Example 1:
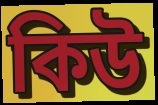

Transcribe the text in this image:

কিউ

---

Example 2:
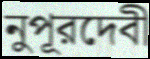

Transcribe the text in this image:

নুপূরদেবী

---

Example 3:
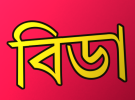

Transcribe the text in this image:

বিডা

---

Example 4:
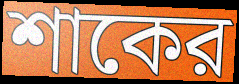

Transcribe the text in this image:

শাকের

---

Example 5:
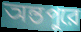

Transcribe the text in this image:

অন্তপুরে